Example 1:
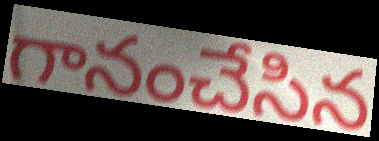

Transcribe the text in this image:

గానంచేసిన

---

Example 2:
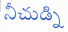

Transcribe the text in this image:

నీచుడ్ని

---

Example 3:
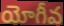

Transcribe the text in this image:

యోగీవ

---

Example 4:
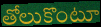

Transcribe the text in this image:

తోలుకొంటూ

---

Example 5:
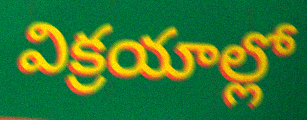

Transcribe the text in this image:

విక్రయాల్లో